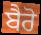
ਬੈਰੋ